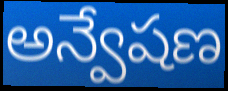
అన్వేషణ